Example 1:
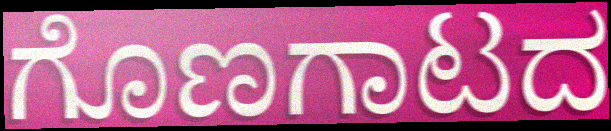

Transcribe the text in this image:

ಗೊಣಗಾಟದ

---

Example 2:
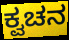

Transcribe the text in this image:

ಕ್ವಚನ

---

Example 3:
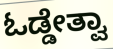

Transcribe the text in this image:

ಓಡ್ಡೇತ್ವಾ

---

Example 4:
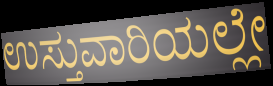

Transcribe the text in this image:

ಉಸ್ತುವಾರಿಯಲ್ಲೇ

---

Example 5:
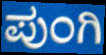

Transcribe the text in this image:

ಪುಂಗಿ